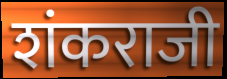
शंकराजी